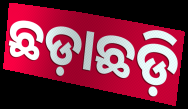
ଛଡ଼ାଛଡ଼ି